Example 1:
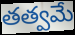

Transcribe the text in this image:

తత్వమే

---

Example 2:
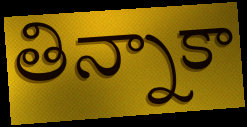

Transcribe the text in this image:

తిన్నాకా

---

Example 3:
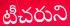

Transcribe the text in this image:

టీచరుని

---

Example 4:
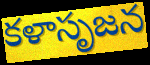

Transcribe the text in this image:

కళాసృజన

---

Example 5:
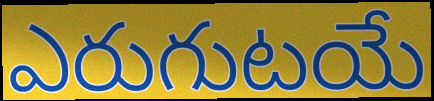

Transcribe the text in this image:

ఎరుగుటయే